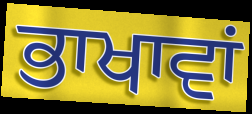
ਭਾਖਾਵਾਂ